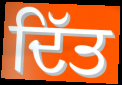
ਦਿੱਤ